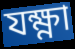
যক্ষ্ণা